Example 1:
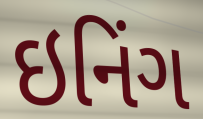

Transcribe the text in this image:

ઇનિંગ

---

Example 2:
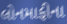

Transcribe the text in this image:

લોનમાફીના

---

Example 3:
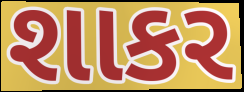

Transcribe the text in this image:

શાકર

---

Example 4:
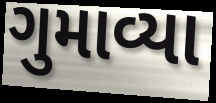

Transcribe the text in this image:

ગુમાવ્યા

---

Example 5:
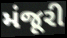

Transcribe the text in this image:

મંજૂરી